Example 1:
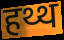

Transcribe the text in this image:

हथ्थ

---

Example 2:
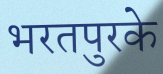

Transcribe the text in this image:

भरतपुरके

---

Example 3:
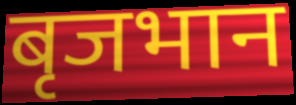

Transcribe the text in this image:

बृजभान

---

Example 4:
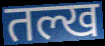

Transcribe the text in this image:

तल्‍ख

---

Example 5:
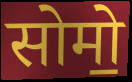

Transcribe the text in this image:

सोमो॒